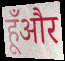
हूँऔर